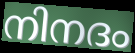
നിനദം